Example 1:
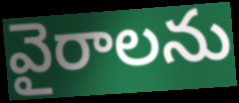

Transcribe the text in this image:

వైరాలను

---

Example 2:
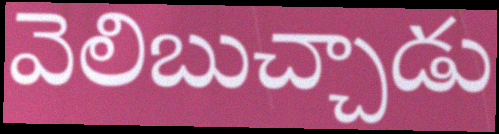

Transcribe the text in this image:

వెలిబుచ్చాడు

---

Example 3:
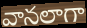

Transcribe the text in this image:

వానలాగా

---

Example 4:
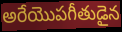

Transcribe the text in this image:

అరేయొపగీతుడైన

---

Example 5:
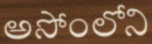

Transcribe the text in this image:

అసోంలోని